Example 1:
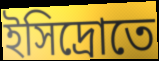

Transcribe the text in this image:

ইসিদ্রোতে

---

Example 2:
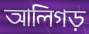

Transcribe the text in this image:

আলিগড়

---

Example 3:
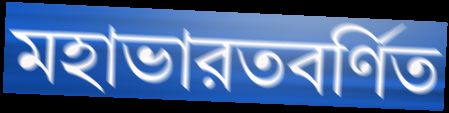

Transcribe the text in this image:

মহাভারতবর্ণিত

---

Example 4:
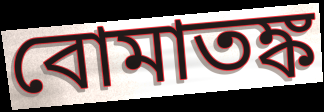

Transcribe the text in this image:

বোমাতঙ্ক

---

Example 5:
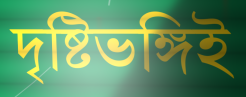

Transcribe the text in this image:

দৃষ্টিভঙ্গিই